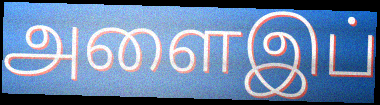
அளைஇப்